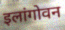
इलांगोवन